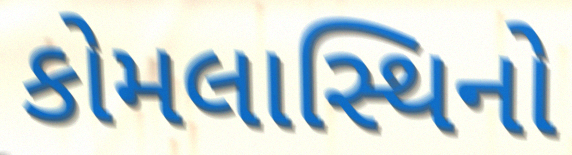
કોમલાસ્થિનો